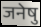
जनेषु